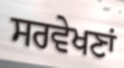
ਸਰਵੇਖਣਾਂ